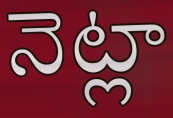
నెట్లా